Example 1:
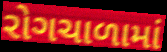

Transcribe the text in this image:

રોગચાળામાં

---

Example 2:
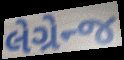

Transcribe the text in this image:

લેગ્રેન્જ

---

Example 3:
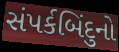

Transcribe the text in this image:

સંપર્કબિંદુનો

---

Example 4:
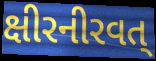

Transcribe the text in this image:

ક્ષીરનીરવત્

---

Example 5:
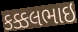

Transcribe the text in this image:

કક્કલભાઇ